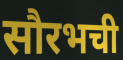
सौरभची